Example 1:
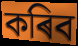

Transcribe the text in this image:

কৰিব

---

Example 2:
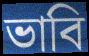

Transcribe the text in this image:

ভাবি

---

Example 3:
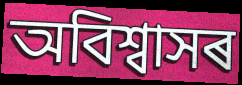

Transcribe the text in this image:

অবিশ্বাসৰ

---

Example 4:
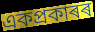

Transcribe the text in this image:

একপ্ৰকাৰৰ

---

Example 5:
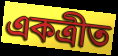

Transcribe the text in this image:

একত্ৰীত